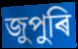
জুপুৰি